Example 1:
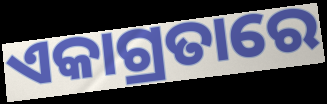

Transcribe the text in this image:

ଏକାଗ୍ରତାରେ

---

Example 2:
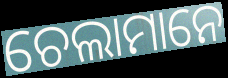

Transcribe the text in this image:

ଚେଲାମାନେ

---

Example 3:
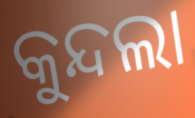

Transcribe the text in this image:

କୁନ୍ଦଲା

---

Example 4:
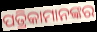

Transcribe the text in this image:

ପତ୍ରିକାମାନଙ୍କର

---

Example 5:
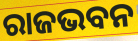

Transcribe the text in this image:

ରାଜଭବନ